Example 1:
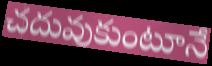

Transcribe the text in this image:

చదువుకుంటూనే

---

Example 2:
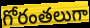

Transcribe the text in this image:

గోరంతలుగా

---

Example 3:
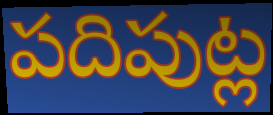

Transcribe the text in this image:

పదిపుట్ల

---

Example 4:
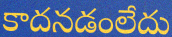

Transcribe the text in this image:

కాదనడంలేదు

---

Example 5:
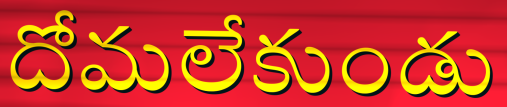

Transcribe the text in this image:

దోమలేకుండు